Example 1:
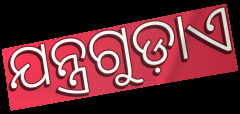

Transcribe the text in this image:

ଯନ୍ତ୍ରଗୁଡ଼ାଏ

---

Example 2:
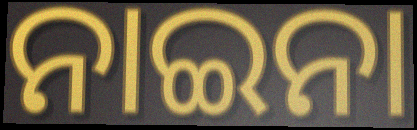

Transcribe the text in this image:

ନାଇନା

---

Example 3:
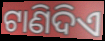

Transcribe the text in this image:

ଟାଣିଦିଏ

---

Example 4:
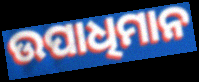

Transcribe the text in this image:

ଉପାଧିମାନ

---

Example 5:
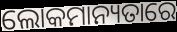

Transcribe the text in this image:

ଲୋକମାନ୍ୟତାରେ